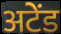
अटेंड